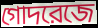
গোদরেজে